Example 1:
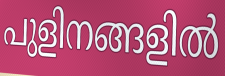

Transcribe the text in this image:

പുളിനങ്ങളിൽ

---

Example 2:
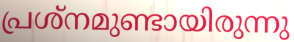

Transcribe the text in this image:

പ്രശ്നമുണ്ടായിരുന്നു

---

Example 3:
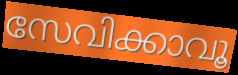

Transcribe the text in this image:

സേവിക്കാവൂ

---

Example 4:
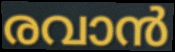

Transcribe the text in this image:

രവാൻ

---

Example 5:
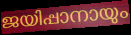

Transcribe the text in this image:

ജയിപ്പാനായും